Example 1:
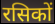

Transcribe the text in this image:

रसिकों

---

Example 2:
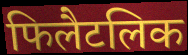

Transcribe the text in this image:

फिलैटलिक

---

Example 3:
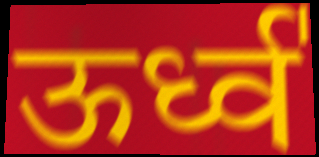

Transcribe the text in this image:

ऊर्ध्व॑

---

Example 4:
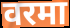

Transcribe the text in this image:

वरमा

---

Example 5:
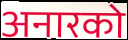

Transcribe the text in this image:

अनारको